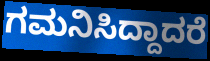
ಗಮನಿಸಿದ್ದಾದರೆ